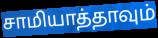
சாமியாத்தாவும்